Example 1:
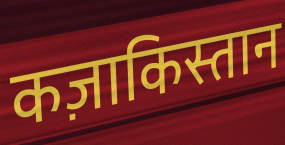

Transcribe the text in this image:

कज़ाकिस्तान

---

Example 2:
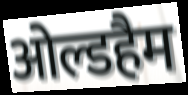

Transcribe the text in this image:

ओल्डहैम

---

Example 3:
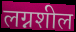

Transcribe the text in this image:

लग्नशील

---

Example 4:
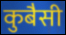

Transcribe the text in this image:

कुबैसी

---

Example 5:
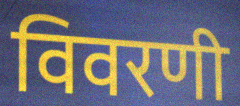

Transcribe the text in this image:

विवरणी